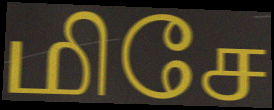
மிசே